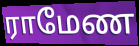
ராமேண